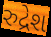
રુદ્રેશ